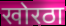
खोरठा